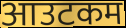
आउटकम